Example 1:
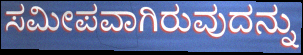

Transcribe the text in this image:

ಸಮೀಪವಾಗಿರುವುದನ್ನು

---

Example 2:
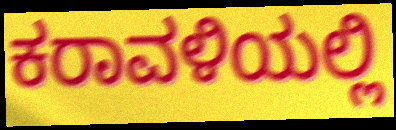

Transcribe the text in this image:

ಕರಾವಳಿಯಲ್ಲಿ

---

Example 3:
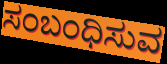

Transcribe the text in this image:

ಸಂಬಂಧಿಸುವ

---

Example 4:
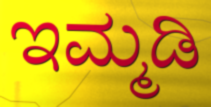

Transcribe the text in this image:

ಇಮ್ಮಡಿ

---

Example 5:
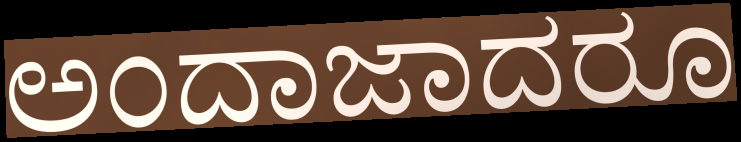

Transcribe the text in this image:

ಅಂದಾಜಾದರೂ